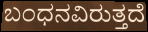
ಬಂಧನವಿರುತ್ತದೆ